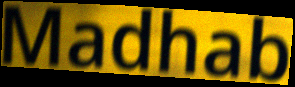
Madhab